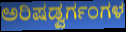
ಅರಿಷಡ್ವರ್ಗಂಗಳ